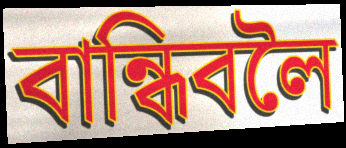
বান্ধিবলৈ